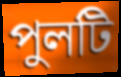
পুলটি